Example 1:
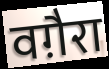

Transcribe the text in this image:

वग़ैरा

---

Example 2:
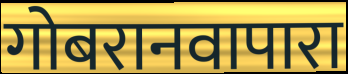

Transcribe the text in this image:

गोबरानवापारा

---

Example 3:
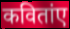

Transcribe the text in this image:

कवितांए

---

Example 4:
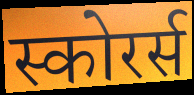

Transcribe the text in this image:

स्कोरर्स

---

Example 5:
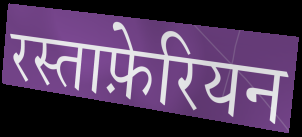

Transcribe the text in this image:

रस्ताफ़ेरियन